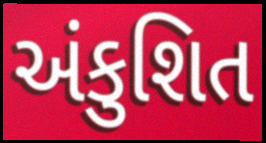
અંકુશિત